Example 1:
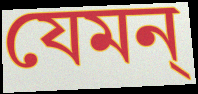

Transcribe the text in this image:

যেমন্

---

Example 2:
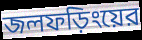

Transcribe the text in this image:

জলফড়িংয়ের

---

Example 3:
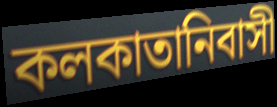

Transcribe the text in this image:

কলকাতানিবাসী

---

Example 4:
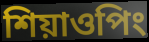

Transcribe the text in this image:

শিয়াওপিং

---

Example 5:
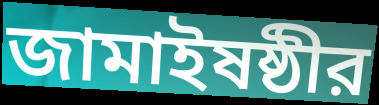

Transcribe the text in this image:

জামাইষষ্ঠীর